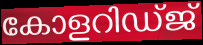
കോളറിഡ്ജ്